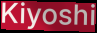
Kiyoshi